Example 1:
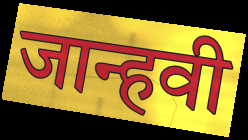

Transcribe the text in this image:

जान्‍हवी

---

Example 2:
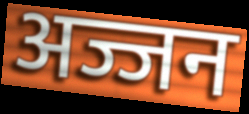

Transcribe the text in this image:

अज्जन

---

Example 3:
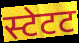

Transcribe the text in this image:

स्टेटट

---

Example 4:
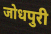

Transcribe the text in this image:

जोधपुरी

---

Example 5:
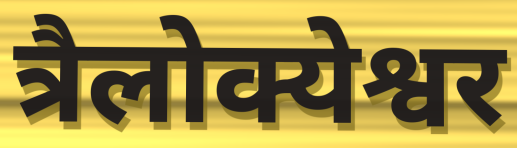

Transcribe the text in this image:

त्रैलोक्येश्वर